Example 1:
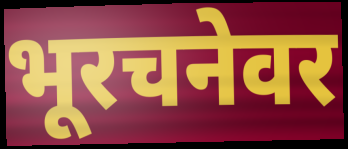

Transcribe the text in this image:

भूरचनेवर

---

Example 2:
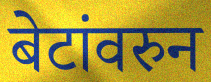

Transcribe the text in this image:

बेटांवरुन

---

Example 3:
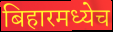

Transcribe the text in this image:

बिहारमध्येच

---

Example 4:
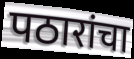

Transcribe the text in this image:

पठारांचा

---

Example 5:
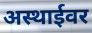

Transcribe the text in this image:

अस्थाईवर